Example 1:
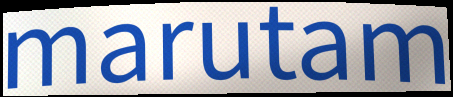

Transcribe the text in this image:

marutam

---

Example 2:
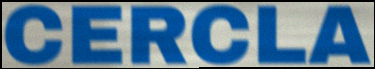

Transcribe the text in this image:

CERCLA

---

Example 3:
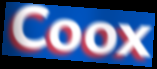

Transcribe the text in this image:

Coox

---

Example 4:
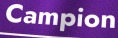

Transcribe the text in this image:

Campion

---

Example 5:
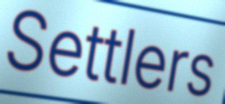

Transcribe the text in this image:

Settlers